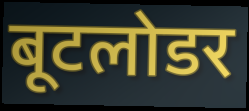
बूटलोडर